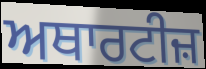
ਅਥਾਰਟੀਜ਼